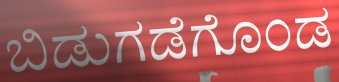
ಬಿಡುಗಡೆಗೊಂಡ